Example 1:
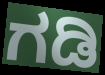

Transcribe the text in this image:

ಗಡಿ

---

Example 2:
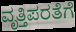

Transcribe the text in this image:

ವೃತ್ತಿಪರತೆಗೆ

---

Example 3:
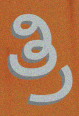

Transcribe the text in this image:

ತ್ರಿ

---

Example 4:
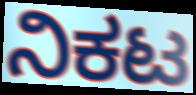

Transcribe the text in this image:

ನಿಕಟ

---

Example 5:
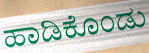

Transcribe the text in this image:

ಹಾಡಿಕೊಂಡು